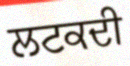
ਲਟਕਦੀ